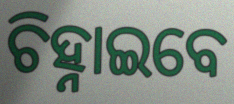
ଚିହ୍ନାଇବେ